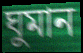
ঘুমান